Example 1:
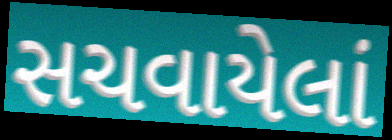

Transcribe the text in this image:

સચવાયેલાં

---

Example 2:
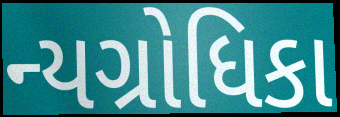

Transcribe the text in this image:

ન્યગ્રોધિકા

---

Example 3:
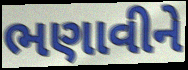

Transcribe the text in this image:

ભણાવીને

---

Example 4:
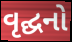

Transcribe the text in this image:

વૃદ્ઘનો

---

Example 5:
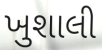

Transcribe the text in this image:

ખુશાલી